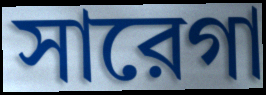
সারেগা